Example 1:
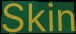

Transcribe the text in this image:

Skin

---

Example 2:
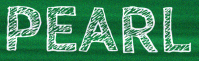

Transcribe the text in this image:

PEARL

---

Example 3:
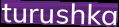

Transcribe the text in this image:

turushka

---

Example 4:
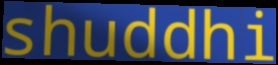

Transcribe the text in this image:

shuddhi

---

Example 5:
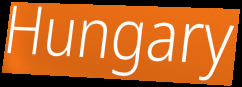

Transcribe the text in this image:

Hungary